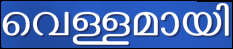
വെള്ളമായി